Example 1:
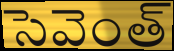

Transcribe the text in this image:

సెవెంత్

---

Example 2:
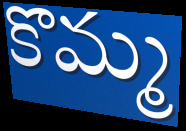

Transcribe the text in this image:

కొమ్మ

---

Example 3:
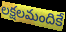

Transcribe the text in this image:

లక్షలమందికే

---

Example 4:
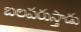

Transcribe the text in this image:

బలపరుస్తాడు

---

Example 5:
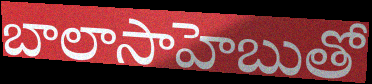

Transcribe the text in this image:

బాలాసాహెబుతో